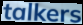
talkers